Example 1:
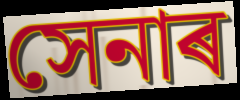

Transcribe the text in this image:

সেনাৰ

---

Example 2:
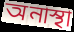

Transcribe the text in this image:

অনাস্থা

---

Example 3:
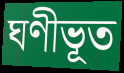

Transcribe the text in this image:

ঘণীভূত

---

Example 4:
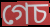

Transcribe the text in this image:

গেচ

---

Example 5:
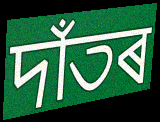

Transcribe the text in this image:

দাঁতৰ